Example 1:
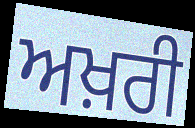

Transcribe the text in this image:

ਅਖ਼ਰੀ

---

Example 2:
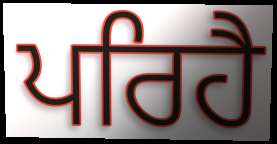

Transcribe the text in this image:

ਪਰਿਹੈ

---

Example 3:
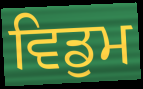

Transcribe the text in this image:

ਵਿਡੁਮ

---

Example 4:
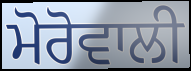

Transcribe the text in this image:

ਮੋਰੋਵਾਲੀ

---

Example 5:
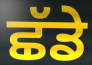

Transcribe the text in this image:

ਛੱਡੇ